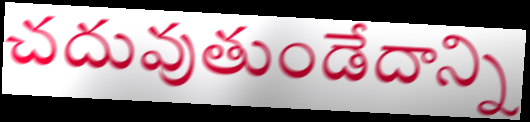
చదువుతుండేదాన్ని